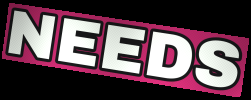
NEEDS